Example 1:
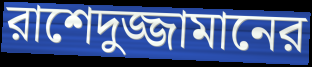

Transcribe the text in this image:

রাশেদুজ্জামানের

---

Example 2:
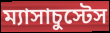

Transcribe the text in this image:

ম্যাসাচুস্টেস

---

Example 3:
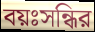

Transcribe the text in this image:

বয়ঃসন্ধির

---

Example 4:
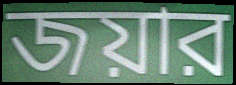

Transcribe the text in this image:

জয়ার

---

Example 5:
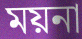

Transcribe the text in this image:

ময়না